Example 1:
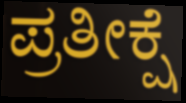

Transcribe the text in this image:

ಪ್ರತೀಕ್ಷೆ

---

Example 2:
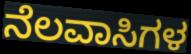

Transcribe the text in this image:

ನೆಲವಾಸಿಗಳ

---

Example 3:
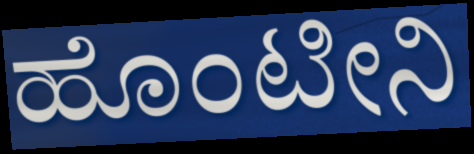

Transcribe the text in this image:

ಹೊಂಟೀನಿ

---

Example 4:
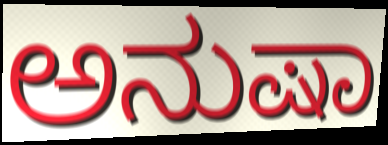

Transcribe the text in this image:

ಅನುಷಾ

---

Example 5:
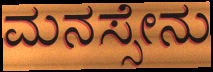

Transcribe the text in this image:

ಮನಸ್ಸೇನು